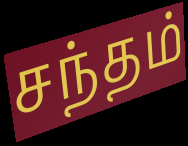
சந்தம்